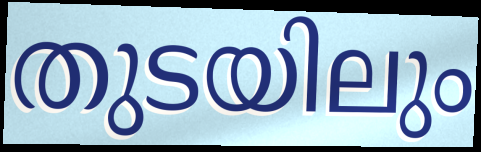
തുടയിലും